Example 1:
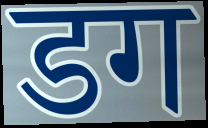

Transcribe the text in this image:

डग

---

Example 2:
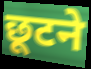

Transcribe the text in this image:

छूटने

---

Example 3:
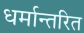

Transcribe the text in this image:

धर्मान्तरित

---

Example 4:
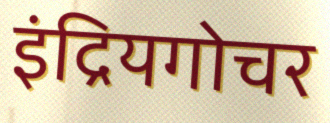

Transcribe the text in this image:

इंद्रियगोचर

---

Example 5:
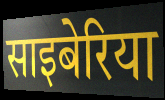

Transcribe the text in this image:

साइबेरिया